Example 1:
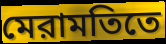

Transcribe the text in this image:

মেরামতিতে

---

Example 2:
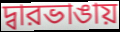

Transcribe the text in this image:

দ্বারভাঙায়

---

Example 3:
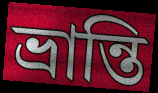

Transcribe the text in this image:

ভ্রান্তি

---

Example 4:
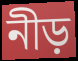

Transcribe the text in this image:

নীড়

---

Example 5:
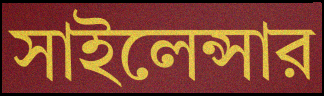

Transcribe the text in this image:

সাইলেন্সার